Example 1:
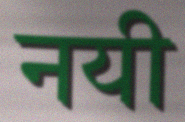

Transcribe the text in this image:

नयी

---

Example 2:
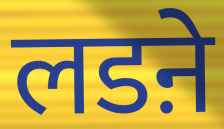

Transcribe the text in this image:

लडऩे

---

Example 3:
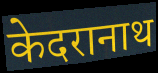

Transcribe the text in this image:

केदरानाथ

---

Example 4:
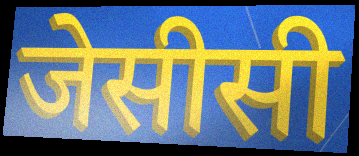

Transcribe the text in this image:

जेसीसी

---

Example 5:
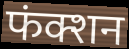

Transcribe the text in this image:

फंक्शन